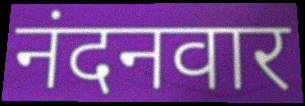
नंदनवार